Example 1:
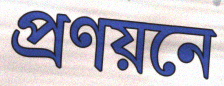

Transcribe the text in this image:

প্রণয়নে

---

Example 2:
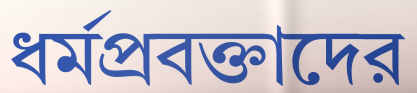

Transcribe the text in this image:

ধর্মপ্রবক্তাদের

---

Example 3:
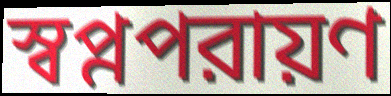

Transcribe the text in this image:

স্বপ্নপরায়ণ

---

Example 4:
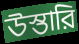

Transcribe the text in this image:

উস্তারি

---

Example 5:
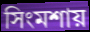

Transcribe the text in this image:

সিংমশায়